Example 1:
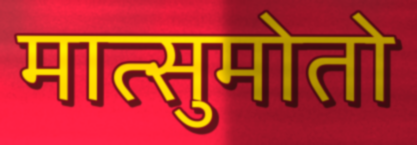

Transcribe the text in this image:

मात्सुमोतो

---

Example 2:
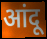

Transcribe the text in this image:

आंदू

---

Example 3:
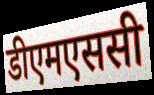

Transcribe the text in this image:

डीएमएससी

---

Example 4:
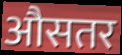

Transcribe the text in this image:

औसतर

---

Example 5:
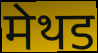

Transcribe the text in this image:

मेथड